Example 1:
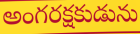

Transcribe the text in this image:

అంగరక్షకుడును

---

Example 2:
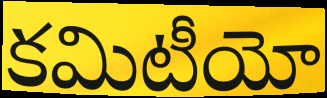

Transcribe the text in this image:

కమిటీయో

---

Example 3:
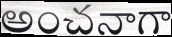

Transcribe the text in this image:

అంచనాగా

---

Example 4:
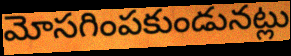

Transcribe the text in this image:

మోసగింపకుండునట్లు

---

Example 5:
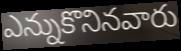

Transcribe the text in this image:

ఎన్నుకొనినవారు